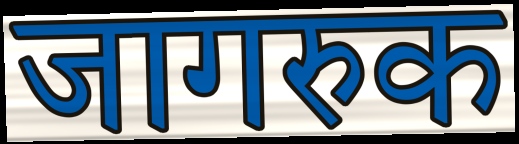
जागरुक